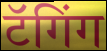
टॅगिंग